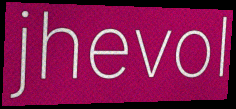
jhevol